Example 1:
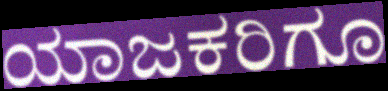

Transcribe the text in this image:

ಯಾಜಕರಿಗೂ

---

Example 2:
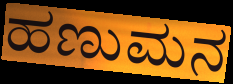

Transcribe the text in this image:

ಹಣುಮನ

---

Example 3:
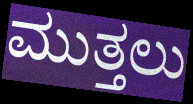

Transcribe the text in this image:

ಮುತ್ತಲು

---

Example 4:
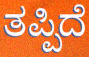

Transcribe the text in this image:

ತಪ್ಪಿದೆ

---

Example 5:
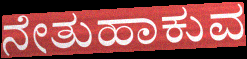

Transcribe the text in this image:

ನೇತುಹಾಕುವ